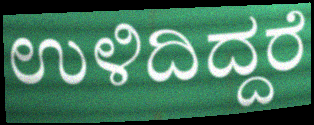
ಉಳಿದಿದ್ದರೆ